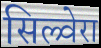
सिल्वेरा